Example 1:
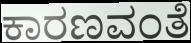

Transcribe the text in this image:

ಕಾರಣವಂತೆ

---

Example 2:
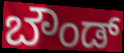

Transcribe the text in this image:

ಬೌಂಡ್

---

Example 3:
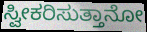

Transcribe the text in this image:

ಸ್ವೀಕರಿಸುತ್ತಾನೋ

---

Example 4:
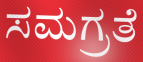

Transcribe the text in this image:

ಸಮಗ್ರತೆ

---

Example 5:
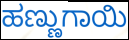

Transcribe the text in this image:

ಹಣ್ಣುಗಾಯಿ